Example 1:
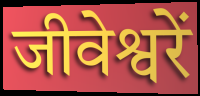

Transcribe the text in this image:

जीवेश्वरें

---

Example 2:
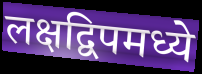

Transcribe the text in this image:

लक्षद्विपमध्ये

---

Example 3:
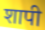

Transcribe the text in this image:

शापी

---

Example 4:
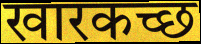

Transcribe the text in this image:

खारकच्छ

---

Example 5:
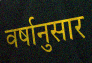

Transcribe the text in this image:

वर्षानुसार